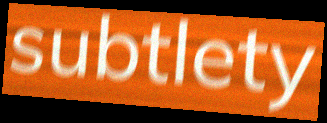
subtlety